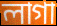
লাগা